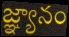
జ్ఞ్యానం